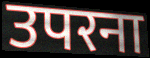
उपरना